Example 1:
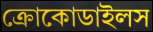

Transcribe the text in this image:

ক্রোকোডাইলস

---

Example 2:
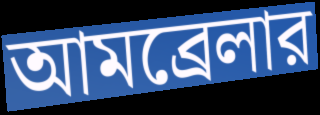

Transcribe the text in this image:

আমব্রেলার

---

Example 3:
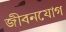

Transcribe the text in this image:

জীবনযোগ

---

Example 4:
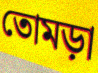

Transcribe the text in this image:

তোমড়া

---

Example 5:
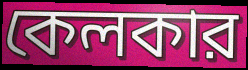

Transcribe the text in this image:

কেলকার